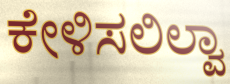
ಕೇಳಿಸಲಿಲ್ವಾ